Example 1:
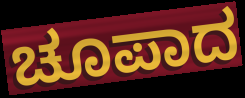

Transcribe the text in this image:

ಚೂಪಾದ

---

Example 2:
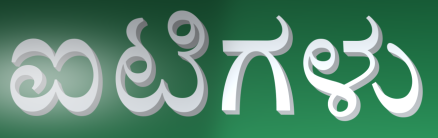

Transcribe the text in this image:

ಐಟಿಗಳು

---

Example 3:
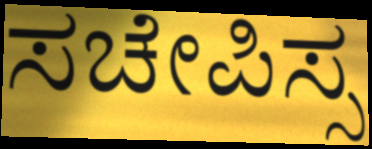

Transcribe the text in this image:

ಸಚೇಪಿಸ್ಸ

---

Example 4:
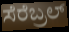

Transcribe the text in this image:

ಸೆರೆಬ್ರಲ್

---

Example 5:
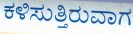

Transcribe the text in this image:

ಕಳಿಸುತ್ತಿರುವಾಗ